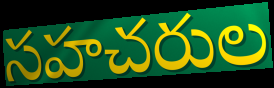
సహచరుల